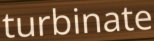
turbinate